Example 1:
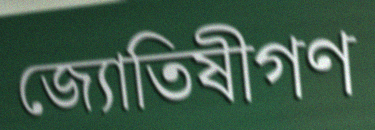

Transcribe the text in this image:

জ্যোতিষীগণ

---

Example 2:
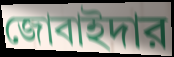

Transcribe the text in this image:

জোবাইদার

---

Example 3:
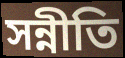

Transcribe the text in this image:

সন্নীতি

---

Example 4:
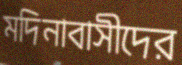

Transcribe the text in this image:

মদিনাবাসীদের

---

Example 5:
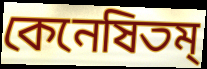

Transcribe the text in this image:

কেনেষিতম্